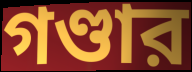
গণ্ডার